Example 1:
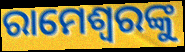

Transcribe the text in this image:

ରାମେଶ୍ୱରଙ୍କୁ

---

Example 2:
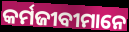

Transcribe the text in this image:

କର୍ମଜୀବୀମାନେ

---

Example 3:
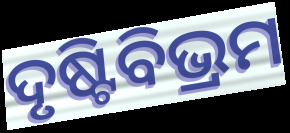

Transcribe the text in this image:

ଦୃଷ୍ଟିବିଭ୍ରମ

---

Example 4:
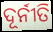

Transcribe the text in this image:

ଦୂର୍ନୀତି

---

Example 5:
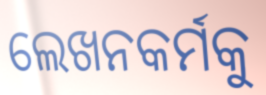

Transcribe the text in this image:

ଲେଖନକର୍ମକୁ